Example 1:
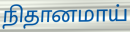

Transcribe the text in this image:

நிதானமாய்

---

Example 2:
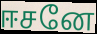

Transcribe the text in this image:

ஈசனே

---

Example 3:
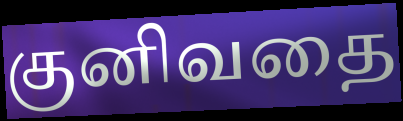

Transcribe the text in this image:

குனிவதை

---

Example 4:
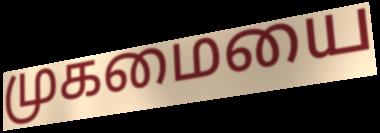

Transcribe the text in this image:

முகமையை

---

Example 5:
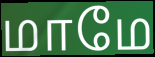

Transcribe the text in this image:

மாமே